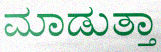
ಮಾಡುತ್ತಾ